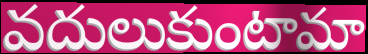
వదులుకుంటామా